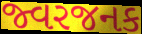
જ્વરજનક